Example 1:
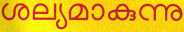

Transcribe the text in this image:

ശല്യമാകുന്നു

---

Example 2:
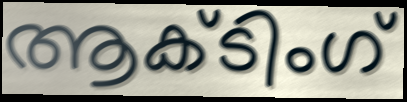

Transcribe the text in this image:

ആക്ടിംഗ്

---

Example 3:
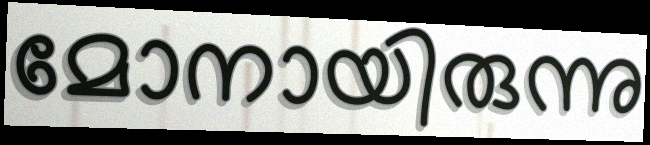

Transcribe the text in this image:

മോനായിരുന്നു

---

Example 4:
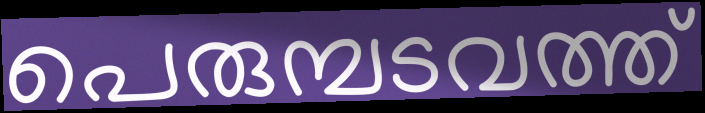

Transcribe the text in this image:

പെരുമ്പടവത്ത്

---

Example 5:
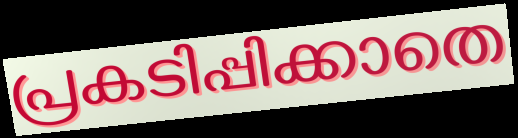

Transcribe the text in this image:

പ്രകടിപ്പിക്കാതെ